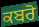
ਕਬਰੋ